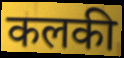
कलकी